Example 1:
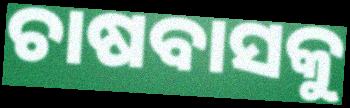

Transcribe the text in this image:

ଚାଷବାସକୁ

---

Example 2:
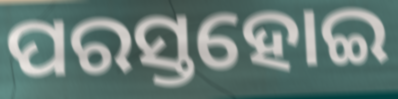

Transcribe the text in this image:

ପରସ୍ତହୋଇ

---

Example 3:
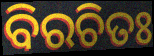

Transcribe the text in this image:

ବିରଚିତଃ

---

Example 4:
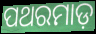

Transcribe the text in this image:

ପଥରମାଡ଼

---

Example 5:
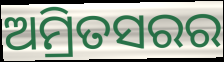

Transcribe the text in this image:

ଅମ୍ରିତସରର